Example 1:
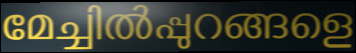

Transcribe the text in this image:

മേച്ചിൽപ്പുറങ്ങളെ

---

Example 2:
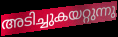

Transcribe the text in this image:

അടിച്ചുകയറ്റുന്നു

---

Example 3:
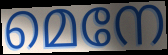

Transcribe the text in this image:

മെനേ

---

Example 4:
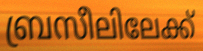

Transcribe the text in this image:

ബ്രസീലിലേക്ക്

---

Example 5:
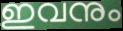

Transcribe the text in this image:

ഇവനും